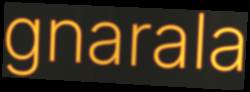
gnarala